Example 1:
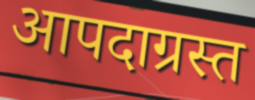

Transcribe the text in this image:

आपदाग्रस्त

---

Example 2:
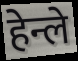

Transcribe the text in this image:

हेन्ले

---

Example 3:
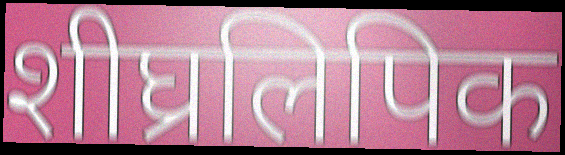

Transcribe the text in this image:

शीघ्रलिपिक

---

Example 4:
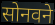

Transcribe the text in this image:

सोनवने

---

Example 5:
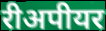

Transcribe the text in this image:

रीअपीयर